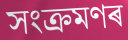
সংক্ৰমণৰ